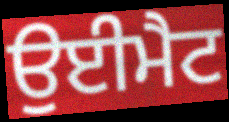
ਉਈਮੈਟ